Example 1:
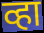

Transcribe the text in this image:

व्हा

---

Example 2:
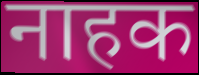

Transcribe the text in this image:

नाहक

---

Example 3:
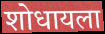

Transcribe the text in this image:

शोधायला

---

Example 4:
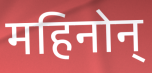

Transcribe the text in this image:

महिनोन्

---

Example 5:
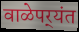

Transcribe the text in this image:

वाळेपर्यंत